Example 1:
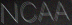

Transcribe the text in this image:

NCAA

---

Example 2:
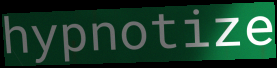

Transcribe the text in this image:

hypnotize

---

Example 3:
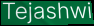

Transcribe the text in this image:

Tejashwi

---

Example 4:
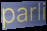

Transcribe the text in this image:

parli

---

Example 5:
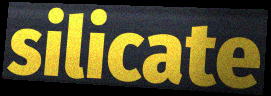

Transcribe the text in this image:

silicate